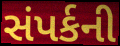
સંપર્કની